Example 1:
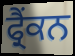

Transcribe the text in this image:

ਫ੍ਰੈਂਕਨ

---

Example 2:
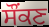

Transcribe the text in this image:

ਸੌਂਕਣ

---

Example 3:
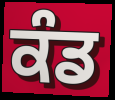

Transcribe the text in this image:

ਕੰਡ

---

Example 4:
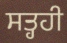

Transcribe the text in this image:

ਸਤ੍ਹਹੀ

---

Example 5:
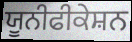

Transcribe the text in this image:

ਯੂਨੀਫੀਕੇਸ਼ਨ